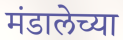
मंडालेच्या